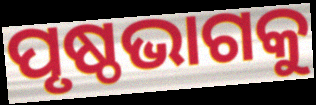
ପୃଷ୍ଠଭାଗକୁ